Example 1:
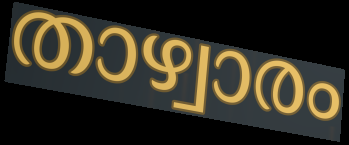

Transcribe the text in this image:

താഴ്വാരം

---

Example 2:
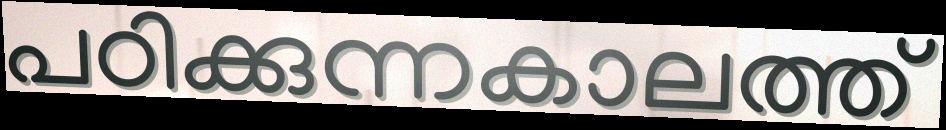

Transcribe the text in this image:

പഠിക്കുന്നകാലത്ത്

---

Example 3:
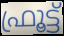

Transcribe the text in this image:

ഫ്രൂട്ട്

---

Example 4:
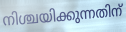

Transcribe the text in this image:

നിശ്ചയിക്കുന്നതിന്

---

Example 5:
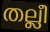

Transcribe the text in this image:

തല്ലീ